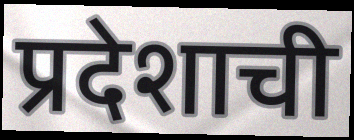
प्रदेशाची